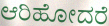
ಆರಿಹೋದರೆ